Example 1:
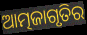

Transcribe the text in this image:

ଆତ୍ମଜାଗୃତିର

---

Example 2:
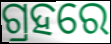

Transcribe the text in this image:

ଗ୍ରହରେ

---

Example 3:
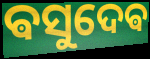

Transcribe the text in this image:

ଵସୁଦେଵ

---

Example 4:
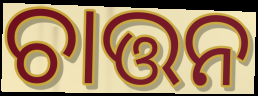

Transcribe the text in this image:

ଚାତ୍ତନ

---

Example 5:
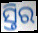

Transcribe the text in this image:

ସ୍ତିର